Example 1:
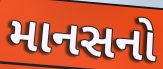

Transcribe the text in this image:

માનસનો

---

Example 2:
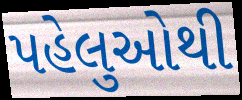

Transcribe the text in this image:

પહેલુઓથી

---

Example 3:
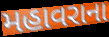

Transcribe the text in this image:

મહાવરાના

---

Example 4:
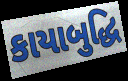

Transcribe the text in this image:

કાયાબુદ્ધિ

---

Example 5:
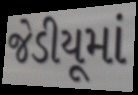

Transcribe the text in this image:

જેડીયૂમાં